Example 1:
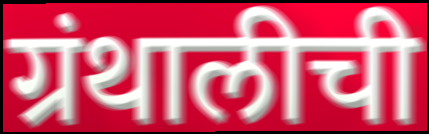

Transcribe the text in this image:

ग्रंथालीची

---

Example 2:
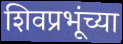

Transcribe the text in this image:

शिवप्रभूंच्या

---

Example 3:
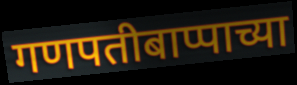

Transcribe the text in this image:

गणपतीबाप्पाच्या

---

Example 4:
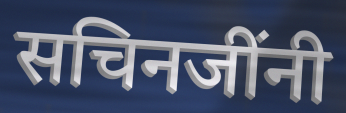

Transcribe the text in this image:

सचिनजींनी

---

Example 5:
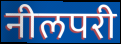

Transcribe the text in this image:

नीलपरी